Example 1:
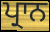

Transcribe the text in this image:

ਪ੍ਰਾਨ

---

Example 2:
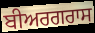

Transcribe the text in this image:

ਬੀਅਰਗਰਾਸ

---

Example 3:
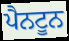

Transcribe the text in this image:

ਪੈਨਟੂਨ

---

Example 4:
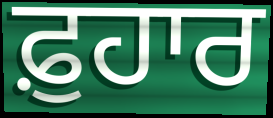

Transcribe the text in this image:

ਫ਼ੁਹਾਰ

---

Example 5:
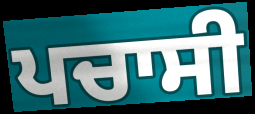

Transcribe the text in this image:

ਪਚਾਸੀ